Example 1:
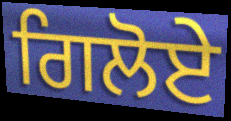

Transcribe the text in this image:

ਗਿਲੋਏ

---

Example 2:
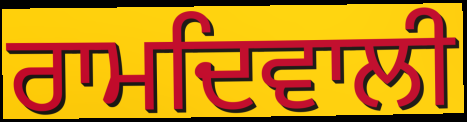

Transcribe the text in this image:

ਰਾਮਦਿਵਾਲੀ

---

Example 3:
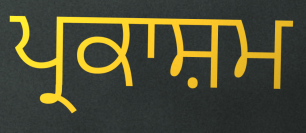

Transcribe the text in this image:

ਪ੍ਰਕਾਸ਼ਮ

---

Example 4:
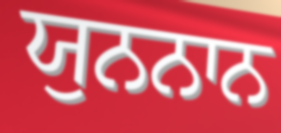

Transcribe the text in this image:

ਯੁਨਨਾਨ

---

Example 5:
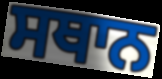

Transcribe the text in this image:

ਸਥਾਨ